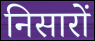
निसारों